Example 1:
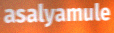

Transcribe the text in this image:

asalyamule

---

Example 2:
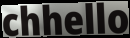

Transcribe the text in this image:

chhello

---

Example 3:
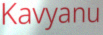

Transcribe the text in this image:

Kavyanu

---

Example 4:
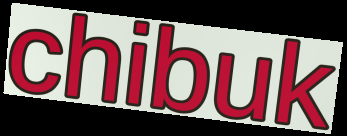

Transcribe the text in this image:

chibuk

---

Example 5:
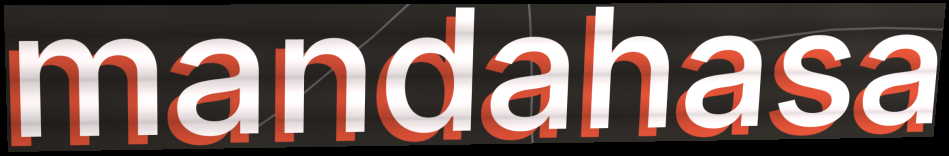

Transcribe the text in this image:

mandahasa